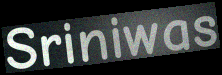
Sriniwas